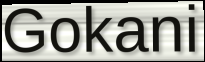
Gokani